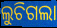
ଲୁଚିଗଲା